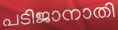
പടിജാനാതി